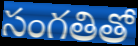
సంగతితో